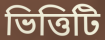
ভিত্তিটি